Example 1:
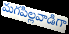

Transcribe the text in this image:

మగపిల్లవాడిగా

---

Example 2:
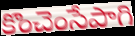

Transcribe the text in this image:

కొంచెంసేపాగి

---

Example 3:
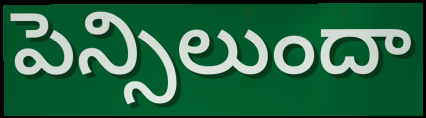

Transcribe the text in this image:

పెన్సిలుందా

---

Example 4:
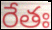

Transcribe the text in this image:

రేతః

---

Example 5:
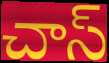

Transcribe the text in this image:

చాస్